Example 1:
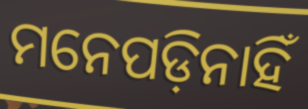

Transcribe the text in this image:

ମନେପଡ଼ିନାହିଁ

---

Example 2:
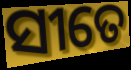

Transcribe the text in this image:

ସୀତେ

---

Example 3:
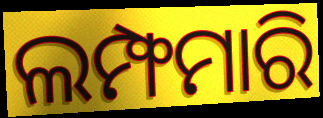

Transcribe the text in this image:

ଲମ୍ଫମାରି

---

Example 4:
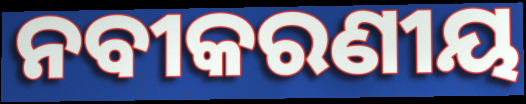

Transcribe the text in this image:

ନବୀକରଣୀୟ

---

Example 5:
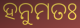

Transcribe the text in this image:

ହନୁମତଃ